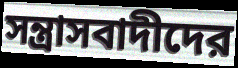
সন্ত্রাসবাদীদের